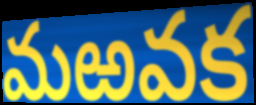
మఱవక